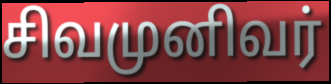
சிவமுனிவர்